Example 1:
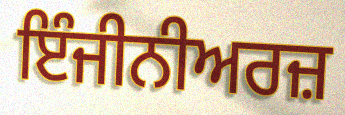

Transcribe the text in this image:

ਇੰਜੀਨੀਅਰਜ਼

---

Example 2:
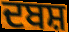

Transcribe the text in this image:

ਦਬਸ਼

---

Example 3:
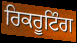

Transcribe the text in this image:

ਰਿਕਰੂਟਿੰਗ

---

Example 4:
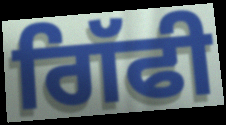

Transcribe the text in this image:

ਗਿੱਫੀ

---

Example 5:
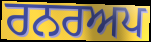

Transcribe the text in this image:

ਰਨਰਅਪ